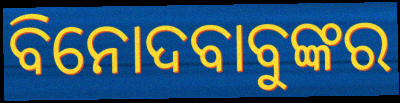
ବିନୋଦବାବୁଙ୍କର